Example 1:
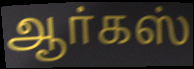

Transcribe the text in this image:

ஆர்கஸ்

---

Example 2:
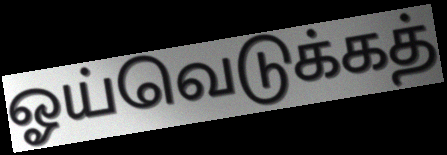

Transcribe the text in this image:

ஓய்வெடுக்கத்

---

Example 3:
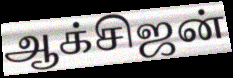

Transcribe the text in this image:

ஆக்சிஜன்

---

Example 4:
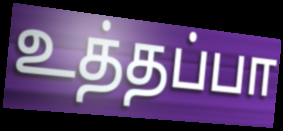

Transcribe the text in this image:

உத்தப்பா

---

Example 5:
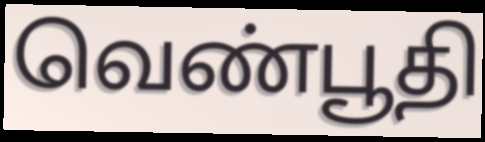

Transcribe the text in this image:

வெண்பூதி